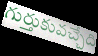
గుర్తుకువచ్చేది